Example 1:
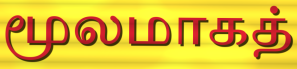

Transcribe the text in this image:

மூலமாகத்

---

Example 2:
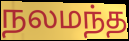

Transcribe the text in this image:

நலமந்த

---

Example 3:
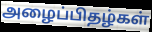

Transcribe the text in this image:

அழைப்பிதழ்கள்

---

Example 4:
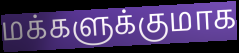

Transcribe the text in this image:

மக்களுக்குமாக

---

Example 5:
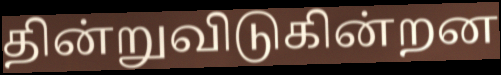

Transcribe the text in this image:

தின்றுவிடுகின்றன